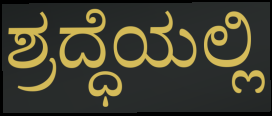
ಶ್ರದ್ಧೆಯಲ್ಲಿ